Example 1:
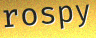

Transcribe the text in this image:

rospy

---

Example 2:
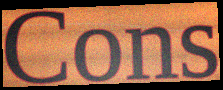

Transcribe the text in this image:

Cons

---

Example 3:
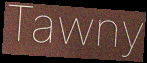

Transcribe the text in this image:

Tawny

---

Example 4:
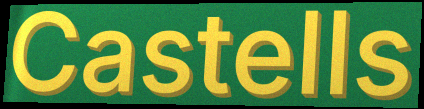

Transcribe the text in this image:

Castells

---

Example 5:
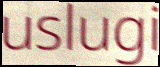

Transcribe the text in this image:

uslugi